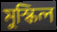
মুস্কিল